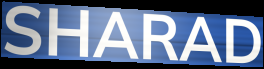
SHARAD